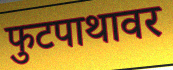
फुटपाथावर